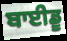
ਬਾਈਡੂ